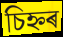
চিহ্নৰ